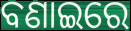
ବଣାଇରେ